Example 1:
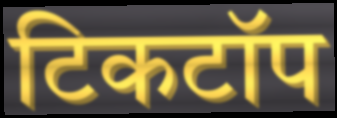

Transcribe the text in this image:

टिकटॉप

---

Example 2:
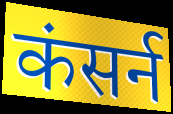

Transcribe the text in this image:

कंसर्न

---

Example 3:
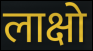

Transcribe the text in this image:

लाक्षो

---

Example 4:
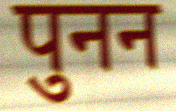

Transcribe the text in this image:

पुनन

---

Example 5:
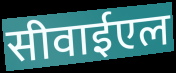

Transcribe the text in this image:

सीवाईएल